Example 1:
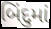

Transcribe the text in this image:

બિંદુમાં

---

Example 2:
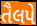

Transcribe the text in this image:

તૈલપે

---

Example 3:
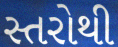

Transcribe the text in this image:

સ્તરોથી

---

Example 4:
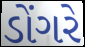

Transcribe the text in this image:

ડોંગરે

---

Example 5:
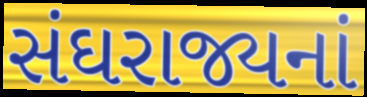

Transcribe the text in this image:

સંઘરાજ્યનાં